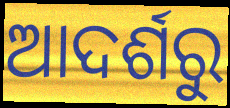
ଆଦର୍ଶରୁ